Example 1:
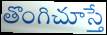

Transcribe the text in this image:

తొంగిచూస్తే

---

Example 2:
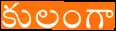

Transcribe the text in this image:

కులంగా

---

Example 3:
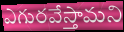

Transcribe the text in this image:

ఎగురవేస్తామని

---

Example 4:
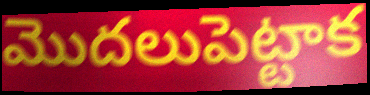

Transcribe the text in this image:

మొదలుపెట్టాక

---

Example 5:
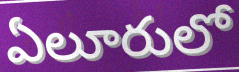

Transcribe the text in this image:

ఏలూరులో